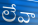
లేవా